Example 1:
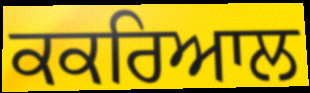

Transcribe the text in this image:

ਕਕਰਿਆਲ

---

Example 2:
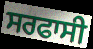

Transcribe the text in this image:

ਸਰਫਾਸੀ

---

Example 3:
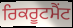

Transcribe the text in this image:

ਰਿਕਰੂਟਮੈਂਟ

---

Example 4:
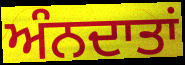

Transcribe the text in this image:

ਅੰਨਦਾਤਾਂ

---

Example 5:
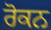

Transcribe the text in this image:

ਰੋਕਨ